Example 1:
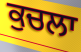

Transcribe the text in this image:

ਕੁਚਲਾ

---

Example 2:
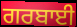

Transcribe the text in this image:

ਗਰਬਾਈ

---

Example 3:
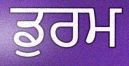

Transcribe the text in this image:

ਡੁਰਮ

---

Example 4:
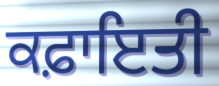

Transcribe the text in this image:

ਕਫ਼ਾਇਤੀ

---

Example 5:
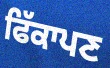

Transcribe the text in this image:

ਫਿੱਕਾਪਣ